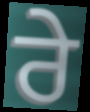
ਰੇ